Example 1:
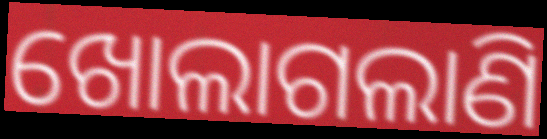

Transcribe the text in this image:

ଖୋଲାଗଲାଣି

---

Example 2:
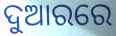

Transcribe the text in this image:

ଦୁଆରରେ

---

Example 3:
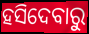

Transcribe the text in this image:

ହସିଦେବାରୁ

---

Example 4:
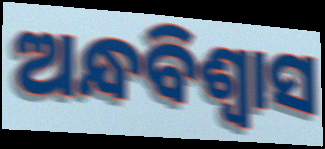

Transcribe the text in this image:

ଅନ୍ଧବିଶ୍ବାସ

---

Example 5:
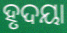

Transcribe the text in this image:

ହୃଦୟା